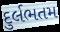
દુર્લભતમ